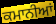
ਕਮਾਨੀਆਂ